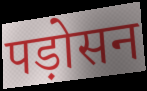
पड़ोसन